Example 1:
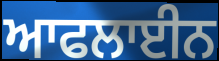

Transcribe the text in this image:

ਆਫਲਾਈਨ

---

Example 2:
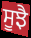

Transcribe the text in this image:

ਸੂਝੈ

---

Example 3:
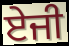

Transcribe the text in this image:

ਏਜੀ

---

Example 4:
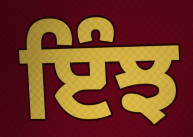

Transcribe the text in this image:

ਇੰਝ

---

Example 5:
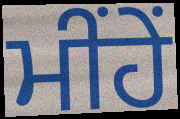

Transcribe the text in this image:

ਮੀਂਹੇਂ